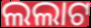
ଲଲାଟ